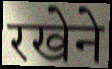
रखेने